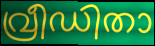
വ്രീഡിതാ